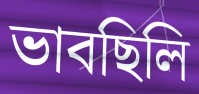
ভাবছিলি